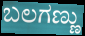
ಬಲಗಣ್ಣು